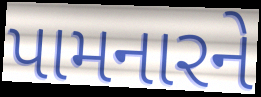
પામનારને